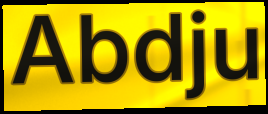
Abdju